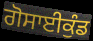
ਗੋਸਾਈਕੁੰਡ